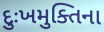
દુઃખમુક્તિના